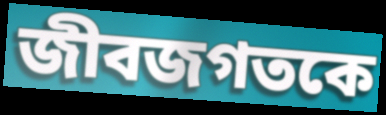
জীবজগতকে